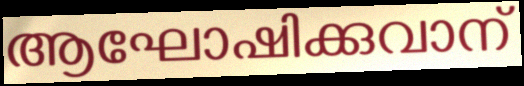
ആഘോഷിക്കുവാന്